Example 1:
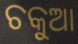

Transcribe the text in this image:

ଚକୁଆ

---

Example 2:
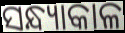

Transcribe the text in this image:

ସନ୍ଧ୍ୟାକାଳ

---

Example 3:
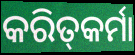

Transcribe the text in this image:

କରିତ୍‍କର୍ମା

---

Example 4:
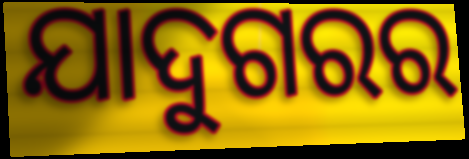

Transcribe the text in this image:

ଯାଦୁଗରର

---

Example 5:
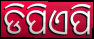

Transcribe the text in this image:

ଡିପିଏପି